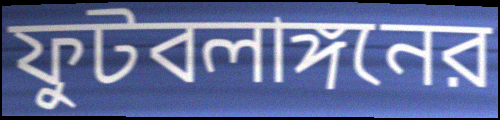
ফুটবলাঙ্গনের